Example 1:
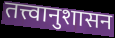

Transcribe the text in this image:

तत्त्वानुशासन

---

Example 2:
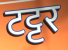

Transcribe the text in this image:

टट्टर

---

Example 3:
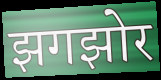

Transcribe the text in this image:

झगझोर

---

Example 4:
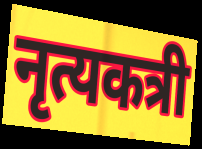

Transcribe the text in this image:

नृत्यकत्री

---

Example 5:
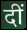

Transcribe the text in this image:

दीं